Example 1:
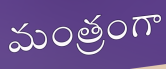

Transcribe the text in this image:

మంత్రంగా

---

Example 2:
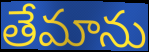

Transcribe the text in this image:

తేమాను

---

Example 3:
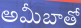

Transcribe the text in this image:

అమీబాతో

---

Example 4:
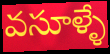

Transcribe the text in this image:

వసూళ్ళే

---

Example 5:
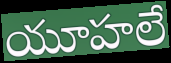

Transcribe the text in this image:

యూహలే